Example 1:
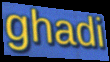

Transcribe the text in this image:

ghadi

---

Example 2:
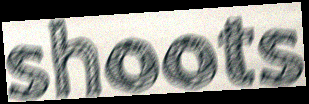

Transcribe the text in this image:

shoots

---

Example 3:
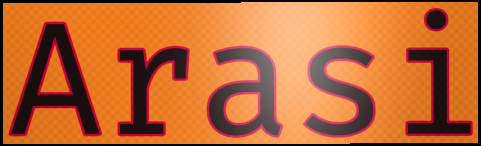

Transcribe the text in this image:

Arasi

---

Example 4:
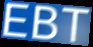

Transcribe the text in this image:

EBT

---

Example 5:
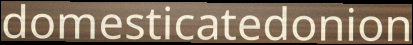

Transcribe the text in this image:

domesticatedonion